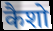
कैशो